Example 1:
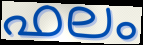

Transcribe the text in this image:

ഫലം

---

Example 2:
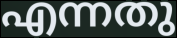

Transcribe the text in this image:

എന്നതു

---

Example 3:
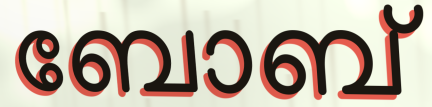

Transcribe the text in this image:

ബോബ്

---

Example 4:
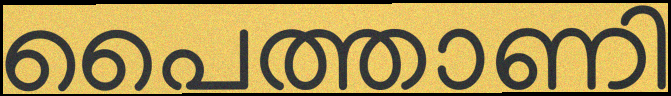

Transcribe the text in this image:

പൈത്താണി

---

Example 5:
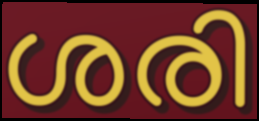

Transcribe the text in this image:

ശരി